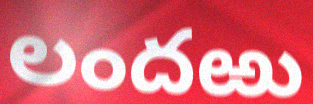
లందఱు